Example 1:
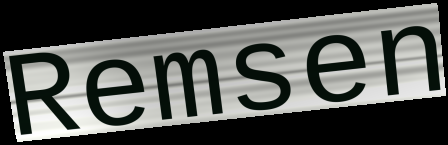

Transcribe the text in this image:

Remsen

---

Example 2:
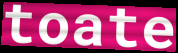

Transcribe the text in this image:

toate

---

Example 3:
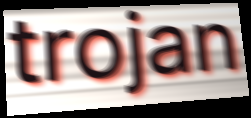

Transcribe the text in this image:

trojan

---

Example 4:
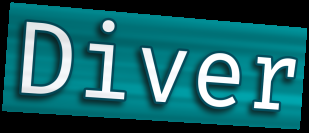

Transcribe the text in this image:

Diver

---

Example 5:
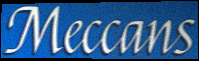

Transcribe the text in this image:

Meccans